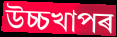
উচ্চখাপৰ